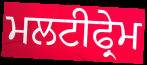
ਮਲਟੀਫ੍ਰੇਮ